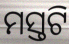
ମସ୍ତଟି